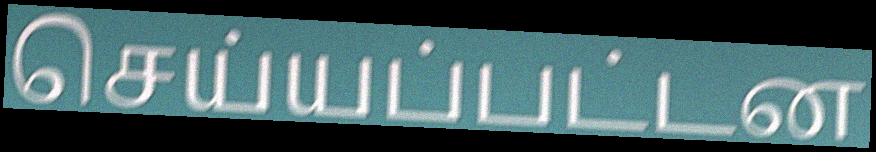
செய்யப்பட்டன